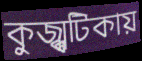
কুজ্ঝ্বটিকায়